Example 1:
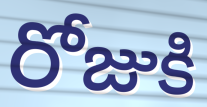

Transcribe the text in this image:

రోజుకి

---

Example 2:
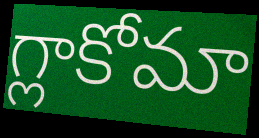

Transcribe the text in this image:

గ్లాకోమా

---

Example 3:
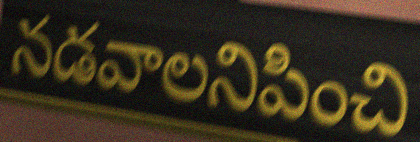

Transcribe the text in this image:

నడవాలనిపించి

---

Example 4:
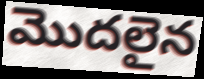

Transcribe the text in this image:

మొదలైన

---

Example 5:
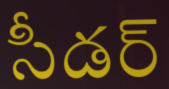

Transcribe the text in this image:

సీడర్